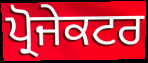
ਪ੍ਰੋਜੇਕਟਰ